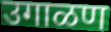
उगाळण